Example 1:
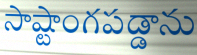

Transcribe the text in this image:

సాష్టాంగపడ్డాను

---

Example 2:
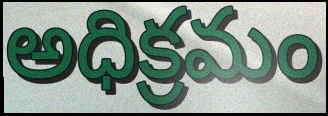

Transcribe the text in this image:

అధిక్రమం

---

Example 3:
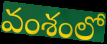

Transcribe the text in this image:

వంశంలో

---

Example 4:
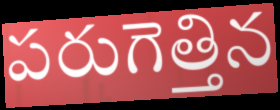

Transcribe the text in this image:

పరుగెత్తిన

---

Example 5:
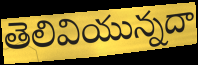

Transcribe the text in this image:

తెలివియున్నదా